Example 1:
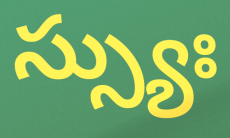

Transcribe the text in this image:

స్స్యుః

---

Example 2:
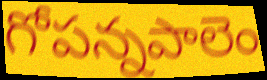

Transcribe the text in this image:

గోపన్నపాలెం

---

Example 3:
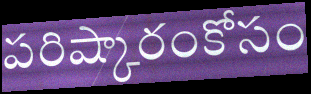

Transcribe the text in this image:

పరిష్కారంకోసం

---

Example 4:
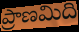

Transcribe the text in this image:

ప్రాణమిది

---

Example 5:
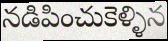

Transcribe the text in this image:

నడిపించుకెళ్ళిన